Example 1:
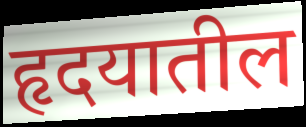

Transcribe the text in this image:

हृदयातील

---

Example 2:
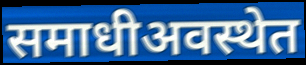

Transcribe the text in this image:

समाधीअवस्थेत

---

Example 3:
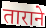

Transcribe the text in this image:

ताराने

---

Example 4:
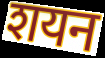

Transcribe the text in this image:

शयन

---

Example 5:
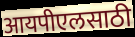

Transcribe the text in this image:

आयपीएलसाठी